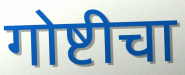
गोष्टीचा